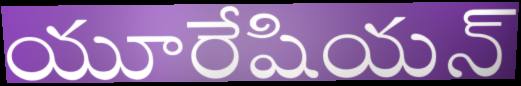
యూరేషియన్